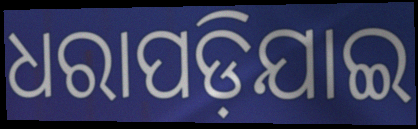
ଧରାପଡ଼ିଯାଇ